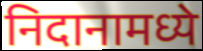
निदानामध्ये